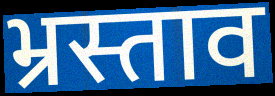
भ्रस्ताव